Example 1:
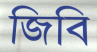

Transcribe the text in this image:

জিবি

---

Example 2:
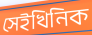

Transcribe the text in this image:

সেইখিনিক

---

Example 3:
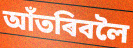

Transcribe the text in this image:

আঁতৰিবলৈ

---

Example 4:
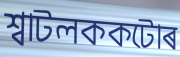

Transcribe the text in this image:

শ্বাটলককটোৰ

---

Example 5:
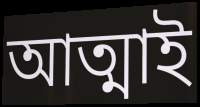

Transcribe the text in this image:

আত্মাই